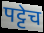
पट्टेच